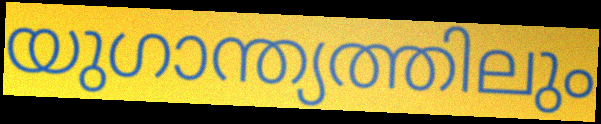
യുഗാന്ത്യത്തിലും